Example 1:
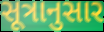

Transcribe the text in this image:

સૂત્રાનુસાર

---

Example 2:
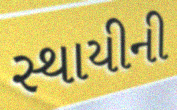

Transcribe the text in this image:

સ્થાયીની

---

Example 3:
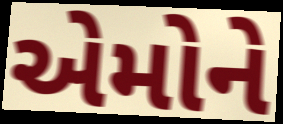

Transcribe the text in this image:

એમોને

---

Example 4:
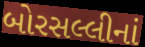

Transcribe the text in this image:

બોરસલ્લીનાં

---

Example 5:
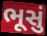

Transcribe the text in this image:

ભૂસું